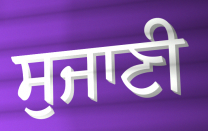
ਸੁਜਾਣੀ